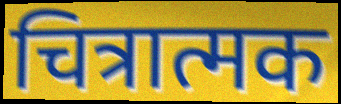
चित्रात्मक